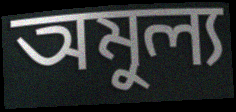
অমুল্য